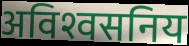
अविश्वसनिय